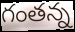
గంతన్న